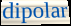
dipolar